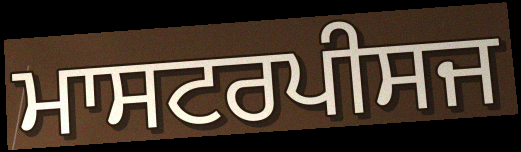
ਮਾਸਟਰਪੀਸਜ